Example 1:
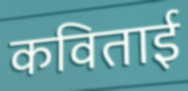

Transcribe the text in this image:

कविताई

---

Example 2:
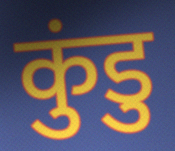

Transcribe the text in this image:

कुंडु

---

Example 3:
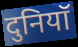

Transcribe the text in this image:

दुनियॉ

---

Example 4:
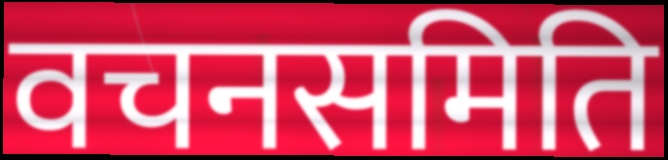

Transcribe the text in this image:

वचनसमिति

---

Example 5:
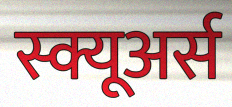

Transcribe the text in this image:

स्क्यूअर्स